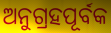
ଅନୁଗ୍ରହପୂର୍ବକ